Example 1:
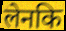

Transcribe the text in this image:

लेनकि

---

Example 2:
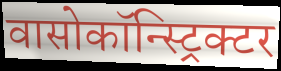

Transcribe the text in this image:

वासोकॉन्स्ट्रिक्टर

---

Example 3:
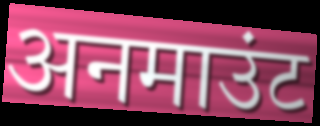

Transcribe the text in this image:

अनमाउंट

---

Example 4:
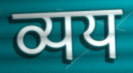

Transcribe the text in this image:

व्यय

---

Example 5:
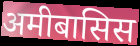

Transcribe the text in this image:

अमीबासिस